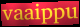
vaaippu